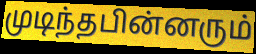
முடிந்தபின்னரும்